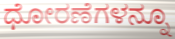
ಧೋರಣೆಗಳನ್ನೂ